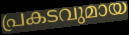
പ്രകടവുമായ